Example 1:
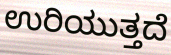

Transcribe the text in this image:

ಉರಿಯುತ್ತದೆ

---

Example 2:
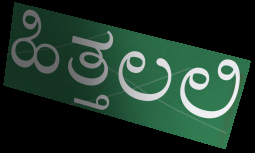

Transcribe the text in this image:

ಹಿತ್ತಲಲಿ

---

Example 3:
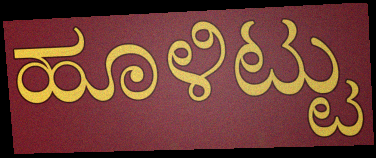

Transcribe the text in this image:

ಹೂಳಿಟ್ಟು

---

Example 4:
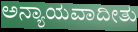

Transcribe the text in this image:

ಅನ್ಯಾಯವಾದೀತು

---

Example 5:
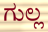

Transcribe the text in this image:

ಗುಲ್ಲ